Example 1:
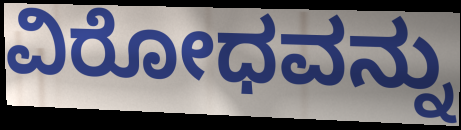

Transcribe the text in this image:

ವಿರೋಧವನ್ನು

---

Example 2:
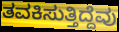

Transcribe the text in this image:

ತವಕಿಸುತ್ತಿದ್ದೆವು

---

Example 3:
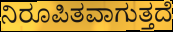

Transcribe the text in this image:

ನಿರೂಪಿತವಾಗುತ್ತದೆ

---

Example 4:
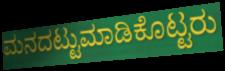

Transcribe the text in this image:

ಮನದಟ್ಟುಮಾಡಿಕೊಟ್ಟರು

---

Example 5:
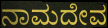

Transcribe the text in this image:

ನಾಮದೇವ